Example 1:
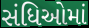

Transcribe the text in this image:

સંધિઓમાં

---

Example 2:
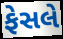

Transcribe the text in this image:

ફેસલે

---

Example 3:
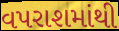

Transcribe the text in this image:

વપરાશમાંથી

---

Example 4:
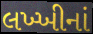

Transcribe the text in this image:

લખ્ખીનાં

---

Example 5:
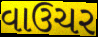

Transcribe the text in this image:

વાઉચર